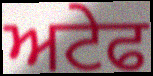
ਅਟੇਫ